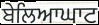
ਬੇਲਿਆਘਾਟ